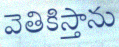
వెతికిస్తాను